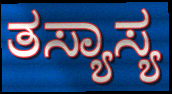
ತಸ್ಯಾಸ್ಯ